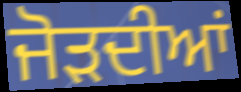
ਜੋੜਦੀਆਂ